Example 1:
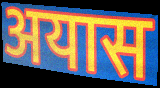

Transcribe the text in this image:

अयास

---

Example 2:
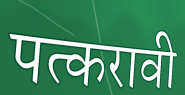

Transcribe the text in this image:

पत्करावी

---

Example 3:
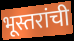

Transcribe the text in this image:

भूस्तरांची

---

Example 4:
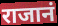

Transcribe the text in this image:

राजानं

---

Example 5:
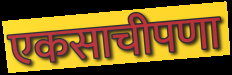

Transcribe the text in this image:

एकसाचीपणा